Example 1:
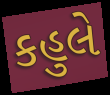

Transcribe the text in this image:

કહુલે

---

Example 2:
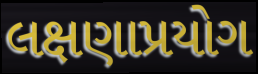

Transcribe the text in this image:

લક્ષણાપ્રયોગ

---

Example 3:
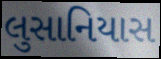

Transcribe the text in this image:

લુસાનિયાસ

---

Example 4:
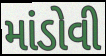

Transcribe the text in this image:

માંડોવી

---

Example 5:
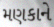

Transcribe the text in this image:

મણકાને